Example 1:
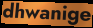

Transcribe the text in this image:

dhwanige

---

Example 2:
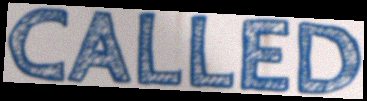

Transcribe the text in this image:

CALLED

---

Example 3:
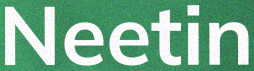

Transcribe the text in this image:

Neetin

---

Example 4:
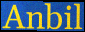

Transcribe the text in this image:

Anbil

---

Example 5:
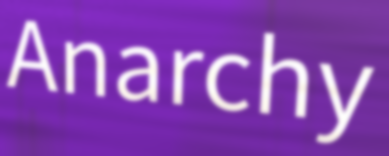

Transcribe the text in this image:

Anarchy